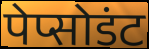
पेप्सोडंट